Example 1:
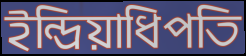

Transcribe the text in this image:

ইন্দ্রিয়াধিপতি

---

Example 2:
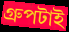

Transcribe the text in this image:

গ্রুপটাই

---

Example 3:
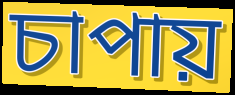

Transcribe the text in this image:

চাপায়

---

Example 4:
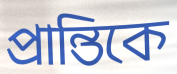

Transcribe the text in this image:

প্রান্তিকে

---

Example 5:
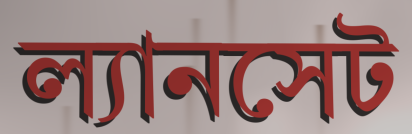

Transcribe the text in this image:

ল্যানসেট